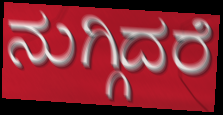
ನುಗ್ಗಿದರೆ